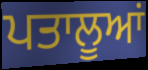
ਪਤਾਲੂਆਂ